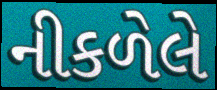
નીકળેલે